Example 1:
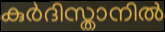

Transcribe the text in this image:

കുർദിസ്താനിൽ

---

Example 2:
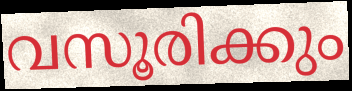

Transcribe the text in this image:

വസൂരിക്കും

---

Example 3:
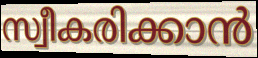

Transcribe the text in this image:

സ്വീകരിക്കാൻ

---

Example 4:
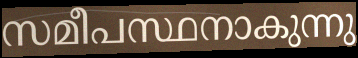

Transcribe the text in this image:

സമീപസ്ഥനാകുന്നു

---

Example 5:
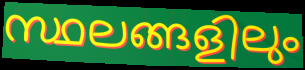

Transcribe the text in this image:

സ്ഥലങ്ങളിലും